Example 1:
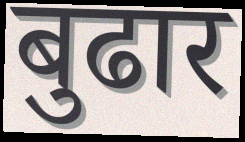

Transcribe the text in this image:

बुढार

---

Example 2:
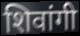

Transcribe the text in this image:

शिवांगी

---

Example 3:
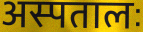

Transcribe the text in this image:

अस्पतालः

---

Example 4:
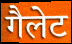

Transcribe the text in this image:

गैलेट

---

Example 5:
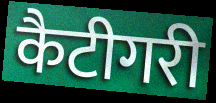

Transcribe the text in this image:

कैटीगरी